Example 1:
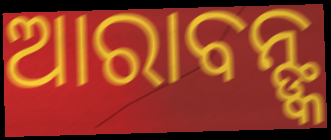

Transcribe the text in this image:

ଆରାବନ୍ଙ୍କ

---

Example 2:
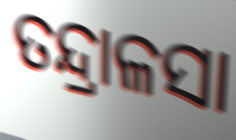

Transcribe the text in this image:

ତନ୍ଦ୍ରାଳସା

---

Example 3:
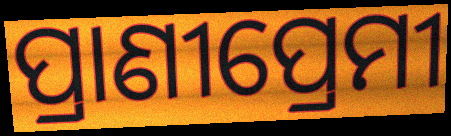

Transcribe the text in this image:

ପ୍ରାଣୀପ୍ରେମୀ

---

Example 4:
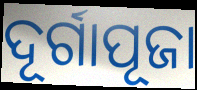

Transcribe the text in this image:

ଦୂର୍ଗାପୂଜା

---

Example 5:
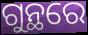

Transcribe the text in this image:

ଗୁନ୍ଥରେ